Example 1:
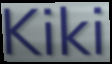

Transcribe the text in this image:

Kiki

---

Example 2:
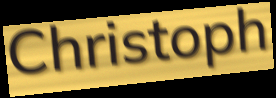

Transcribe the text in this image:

Christoph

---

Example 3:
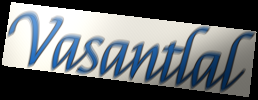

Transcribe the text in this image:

Vasantlal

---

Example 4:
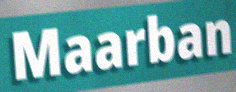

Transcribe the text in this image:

Maarban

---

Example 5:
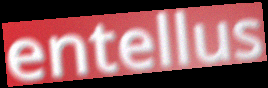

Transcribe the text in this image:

entellus